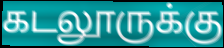
கடலூருக்கு